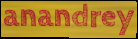
anandrey